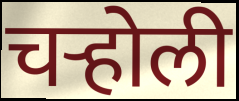
चऱ्होली